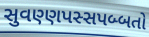
સુવણ્ણપસ્સપબ્બતો